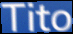
Tito